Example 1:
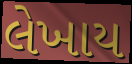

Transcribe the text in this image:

લેખાય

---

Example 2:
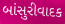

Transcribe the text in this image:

બાંસુરીવાદક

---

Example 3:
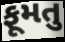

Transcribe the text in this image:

ફૂમતુ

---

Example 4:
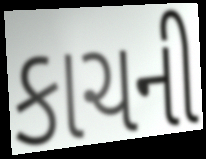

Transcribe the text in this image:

કાચની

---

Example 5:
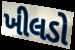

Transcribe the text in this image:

ખીલડો